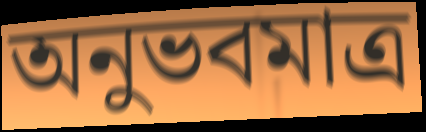
অনুভবমাত্র